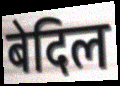
बेदिल